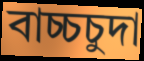
বাচ্চচুদা